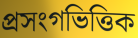
প্ৰসংগভিত্তিক